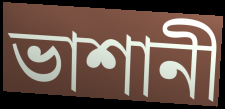
ভাশানী